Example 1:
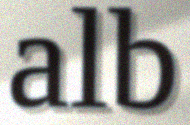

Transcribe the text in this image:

alb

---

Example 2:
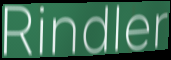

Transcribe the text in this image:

Rindler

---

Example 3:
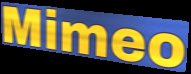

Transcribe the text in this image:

Mimeo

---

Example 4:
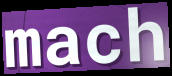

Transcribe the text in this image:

mach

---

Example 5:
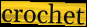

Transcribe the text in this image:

crochet